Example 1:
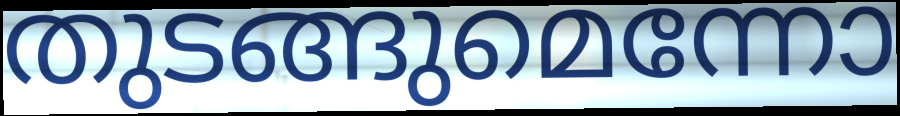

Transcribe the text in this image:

തുടങ്ങുമെന്നോ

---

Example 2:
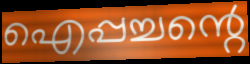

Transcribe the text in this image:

ഐപ്പച്ചന്റെ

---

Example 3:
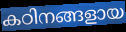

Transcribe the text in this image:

കഠിനങ്ങളായ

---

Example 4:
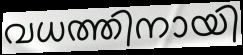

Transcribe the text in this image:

വധത്തിനായി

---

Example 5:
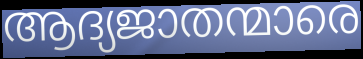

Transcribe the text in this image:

ആദ്യജാതന്മാരെ